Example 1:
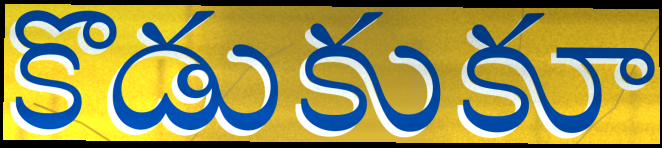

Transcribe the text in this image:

కొడుకుకూ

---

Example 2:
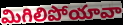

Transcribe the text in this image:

మిగిలిపోయావా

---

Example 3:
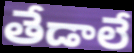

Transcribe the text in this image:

తేడాలే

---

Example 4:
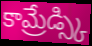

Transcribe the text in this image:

కామ్రేడ్స్కి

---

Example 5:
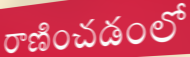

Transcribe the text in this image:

రాణించడంలో